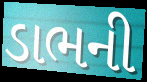
ડાભની